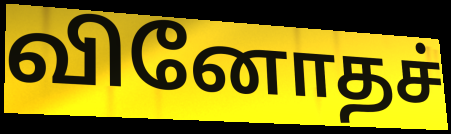
வினோதச்